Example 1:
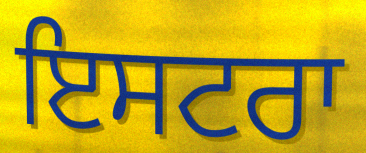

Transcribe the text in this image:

ਇਸਟਰਾ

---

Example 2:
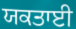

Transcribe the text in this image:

ਯਕਤਾਈ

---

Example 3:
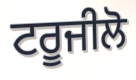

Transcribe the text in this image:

ਟਰੂਜੀਲੋ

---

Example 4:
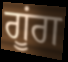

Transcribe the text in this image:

ਗੂਂਗ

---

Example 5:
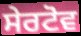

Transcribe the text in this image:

ਸੇਰਟੋਵ